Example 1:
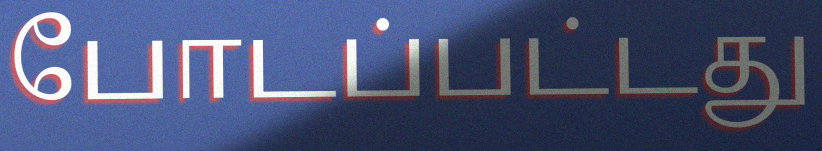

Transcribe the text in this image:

போடப்பட்டது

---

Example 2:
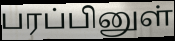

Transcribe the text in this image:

பரப்பினுள்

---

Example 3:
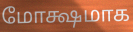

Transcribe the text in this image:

மோக்ஷமாக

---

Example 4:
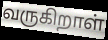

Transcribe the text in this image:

வருகிறாள்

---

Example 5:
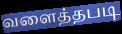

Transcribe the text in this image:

வளைத்தபடி